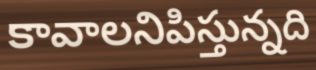
కావాలనిపిస్తున్నది